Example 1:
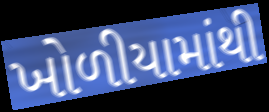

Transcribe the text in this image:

ખોળીયામાંથી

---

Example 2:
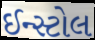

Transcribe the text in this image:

ઈન્સ્ટોલ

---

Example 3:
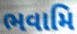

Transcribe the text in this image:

ભવામિ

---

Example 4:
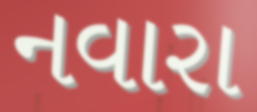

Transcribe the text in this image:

નવારા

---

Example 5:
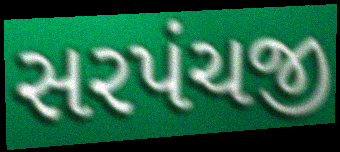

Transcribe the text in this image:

સરપંચજી